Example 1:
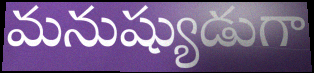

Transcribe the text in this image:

మనుష్యుడుగా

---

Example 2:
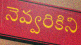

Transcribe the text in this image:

నెవ్వరికిని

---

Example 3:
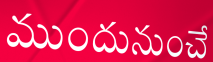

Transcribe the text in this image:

ముందునుంచే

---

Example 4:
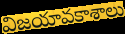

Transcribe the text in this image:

విజయావకాశాలు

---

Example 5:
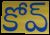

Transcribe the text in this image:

కోవ్